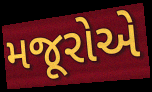
મજૂરોએ